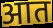
आत